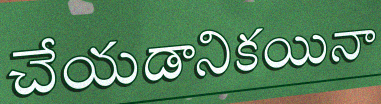
చేయడానికయినా